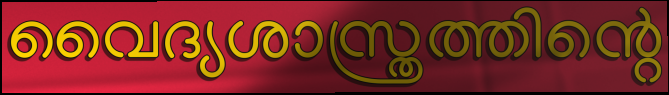
വൈദ്യശാസ്ത്രത്തിന്റെ